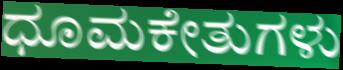
ಧೂಮಕೇತುಗಳು